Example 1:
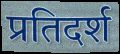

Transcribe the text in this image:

प्रतिदर्श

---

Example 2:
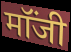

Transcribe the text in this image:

मॉंजी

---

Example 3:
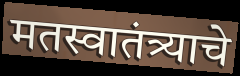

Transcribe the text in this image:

मतस्वातंत्र्याचे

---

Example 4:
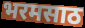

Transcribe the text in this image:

भरमसाठ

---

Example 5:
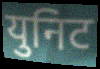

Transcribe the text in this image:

युनिट